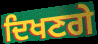
ਦਿਖਣਗੇ